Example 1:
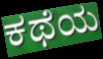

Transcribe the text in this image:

ಕಥೆಯ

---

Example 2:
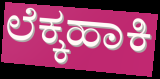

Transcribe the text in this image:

ಲೆಕ್ಕಹಾಕಿ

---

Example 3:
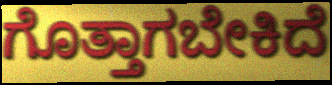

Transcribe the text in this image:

ಗೊತ್ತಾಗಬೇಕಿದೆ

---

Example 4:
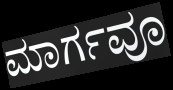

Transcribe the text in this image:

ಮಾರ್ಗವೂ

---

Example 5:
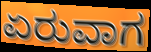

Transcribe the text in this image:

ಏರುವಾಗ